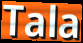
Tala